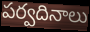
పర్వదినాలు